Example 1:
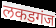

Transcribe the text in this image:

लकडगंज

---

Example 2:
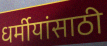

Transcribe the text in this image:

धर्मीयांसाठी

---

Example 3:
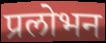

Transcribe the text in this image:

प्रलोभन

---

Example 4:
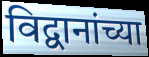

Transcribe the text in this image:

विद्वानांच्या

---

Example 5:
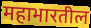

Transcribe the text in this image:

महाभारतील